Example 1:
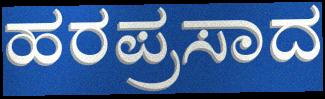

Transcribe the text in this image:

ಹರಪ್ರಸಾದ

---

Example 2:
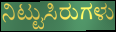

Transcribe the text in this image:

ನಿಟ್ಟುಸಿರುಗಳು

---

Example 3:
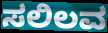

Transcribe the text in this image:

ಸಲಿಲವ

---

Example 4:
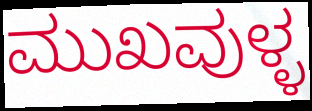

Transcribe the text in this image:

ಮುಖವುಳ್ಳ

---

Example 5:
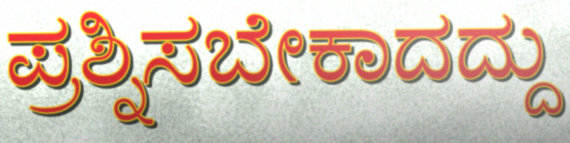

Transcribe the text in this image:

ಪ್ರಶ್ನಿಸಬೇಕಾದದ್ದು